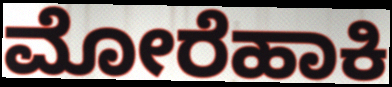
ಮೋರೆಹಾಕಿ